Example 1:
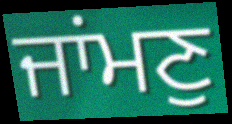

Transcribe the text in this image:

ਜਾਂਮਣੁ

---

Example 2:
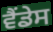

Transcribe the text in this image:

ਵੈਂਡੇਸ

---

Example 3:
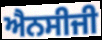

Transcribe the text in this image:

ਐਨਸੀਜੀ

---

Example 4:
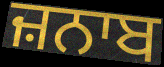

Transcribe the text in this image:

ਜ਼ਨਾਬ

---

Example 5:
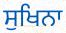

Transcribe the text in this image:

ਸੁਖਿਨਾ